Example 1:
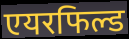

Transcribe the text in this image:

एयरफिल्ड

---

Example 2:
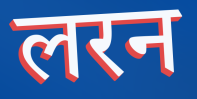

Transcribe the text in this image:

लरन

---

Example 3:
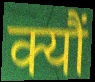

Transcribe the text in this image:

क्यौं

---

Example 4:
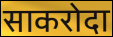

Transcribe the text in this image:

साकरोदा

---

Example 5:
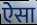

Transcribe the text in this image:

ऐेसा